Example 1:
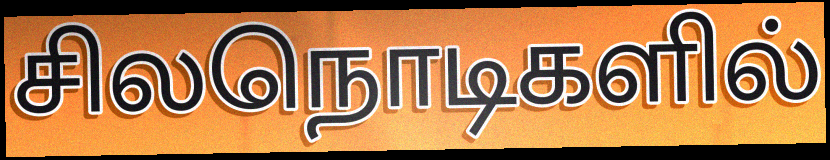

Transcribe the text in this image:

சிலநொடிகளில்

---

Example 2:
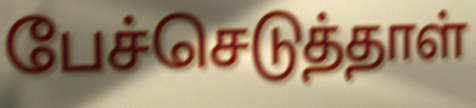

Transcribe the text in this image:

பேச்செடுத்தாள்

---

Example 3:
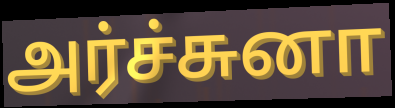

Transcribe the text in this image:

அர்ச்சுனா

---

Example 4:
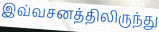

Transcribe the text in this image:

இவ்வசனத்திலிருந்து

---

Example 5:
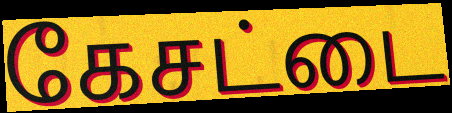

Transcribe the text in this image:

கேசட்டை